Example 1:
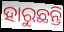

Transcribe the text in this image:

ହାରୁଛନ୍ତି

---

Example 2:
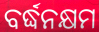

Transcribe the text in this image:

ବର୍ଦ୍ଧନକ୍ଷମ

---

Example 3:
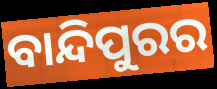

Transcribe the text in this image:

ବାନ୍ଦିପୁରର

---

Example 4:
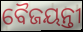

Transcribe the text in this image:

ବୈଜୟନ୍ତୀ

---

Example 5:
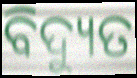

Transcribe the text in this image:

ବିଦ୍ଯୁତ